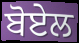
ਬੋਏਲ